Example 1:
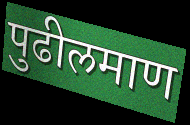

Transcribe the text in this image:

पुढीलमाण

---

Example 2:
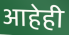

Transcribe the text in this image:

आहेही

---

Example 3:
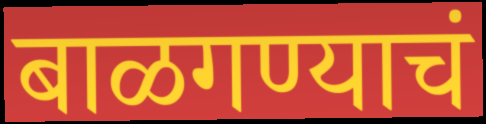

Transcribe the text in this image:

बाळगण्याचं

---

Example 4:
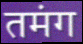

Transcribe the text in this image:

तमंग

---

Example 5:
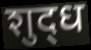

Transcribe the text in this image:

शुद्ध